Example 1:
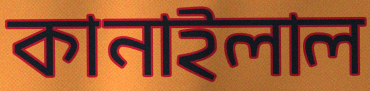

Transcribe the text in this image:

কানাইলাল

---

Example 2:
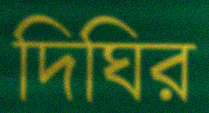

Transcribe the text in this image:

দিঘির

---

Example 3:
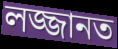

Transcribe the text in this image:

লজ্জানত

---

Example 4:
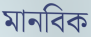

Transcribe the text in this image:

মানবিক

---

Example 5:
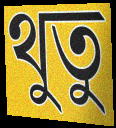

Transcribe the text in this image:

থুতু